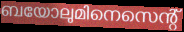
ബയോലുമിനെസെന്റ്